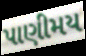
પાણીમય